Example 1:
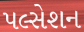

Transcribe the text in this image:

પલ્સેશન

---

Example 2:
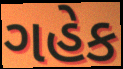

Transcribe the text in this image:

ગહેક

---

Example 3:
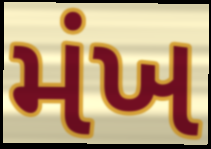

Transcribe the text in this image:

મંખ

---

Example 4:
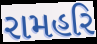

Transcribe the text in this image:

રામહરિ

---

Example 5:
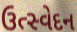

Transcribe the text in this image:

ઉત્સ્વેદન